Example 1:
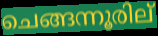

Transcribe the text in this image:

ചെങ്ങന്നൂരില്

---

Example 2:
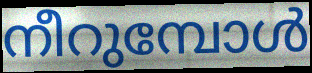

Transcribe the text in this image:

നീറുമ്പോൾ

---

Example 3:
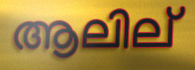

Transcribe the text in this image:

ആലില്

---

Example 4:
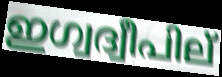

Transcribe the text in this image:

ഇഗ്വദ്വീപില്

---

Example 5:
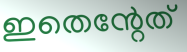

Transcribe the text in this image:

ഇതെന്റേത്